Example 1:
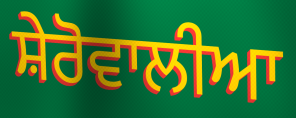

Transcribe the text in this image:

ਸ਼ੇਰੋਵਾਲੀਆ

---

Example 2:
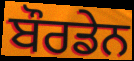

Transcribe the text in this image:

ਬੌਰਡੇਨ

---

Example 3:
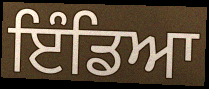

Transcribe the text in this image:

ਇੰਡਿਆ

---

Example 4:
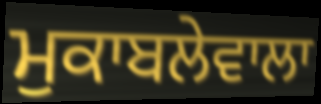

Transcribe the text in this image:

ਮੁਕਾਬਲੇਵਾਲਾ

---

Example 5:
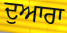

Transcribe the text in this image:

ਦੁਆਰਾ